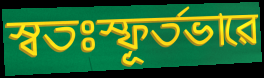
স্বতঃস্ফূৰ্তভাৱে